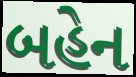
બહેન